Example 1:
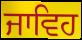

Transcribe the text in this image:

ਜਾਵਿਹ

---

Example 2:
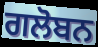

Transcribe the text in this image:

ਗਲੋਬਨ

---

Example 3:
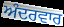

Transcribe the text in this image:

ਅੰਦਰਵਾਰ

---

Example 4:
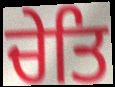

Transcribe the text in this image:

ਚੇਤਿ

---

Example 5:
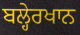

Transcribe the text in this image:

ਬਲ੍ਹੇਰਖਾਨ